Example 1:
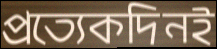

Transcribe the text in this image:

প্রত্যেকদিনই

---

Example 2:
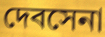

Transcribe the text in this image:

দেবসেনা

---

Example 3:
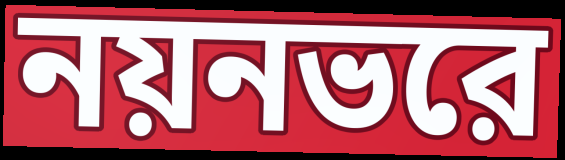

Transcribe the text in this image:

নয়নভরে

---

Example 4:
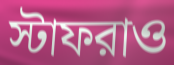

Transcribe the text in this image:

স্টাফরাও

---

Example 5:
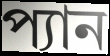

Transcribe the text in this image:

প্যান